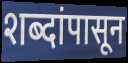
शब्दांपासून